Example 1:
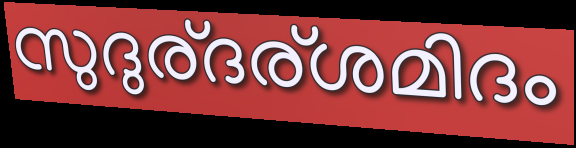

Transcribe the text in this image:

സുദുര്ദര്ശമിദം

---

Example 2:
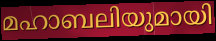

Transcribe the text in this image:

മഹാബലിയുമായി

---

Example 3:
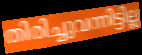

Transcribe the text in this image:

തിരിച്ചുവന്നിട്ടില്ല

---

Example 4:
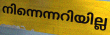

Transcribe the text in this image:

നിന്നെന്നറിയില്ല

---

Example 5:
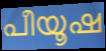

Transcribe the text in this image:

പീയൂഷ